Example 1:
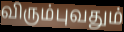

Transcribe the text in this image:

விரும்புவதும்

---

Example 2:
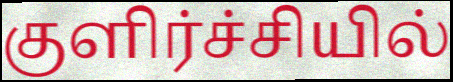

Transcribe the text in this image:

குளிர்ச்சியில்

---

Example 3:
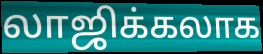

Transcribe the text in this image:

லாஜிக்கலாக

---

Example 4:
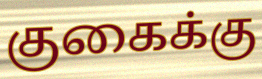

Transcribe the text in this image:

குகைக்கு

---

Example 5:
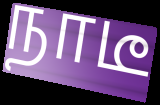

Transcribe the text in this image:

நாடீ